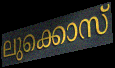
ലുക്കൊസ്